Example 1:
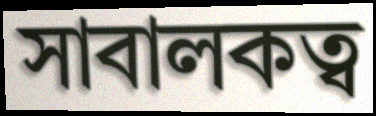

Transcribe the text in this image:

সাবালকত্ব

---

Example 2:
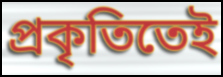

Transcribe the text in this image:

প্রকৃতিতেই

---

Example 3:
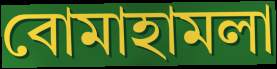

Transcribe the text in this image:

বোমাহামলা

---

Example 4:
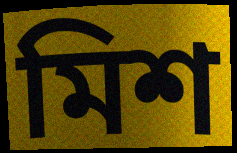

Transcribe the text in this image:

মিশ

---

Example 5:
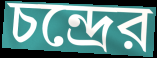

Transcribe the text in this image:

চন্দ্রের